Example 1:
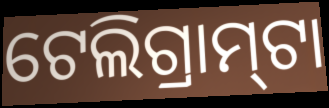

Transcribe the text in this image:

ଟେଲିଗ୍ରାମ୍‍ଟା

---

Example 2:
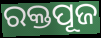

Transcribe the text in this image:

ରକ୍ତପୂଜ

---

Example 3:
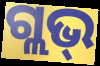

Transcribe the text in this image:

ଗ୍ଲଭ୍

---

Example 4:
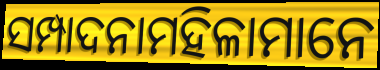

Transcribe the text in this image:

ସମ୍ପାଦନାମହିଳାମାନେ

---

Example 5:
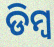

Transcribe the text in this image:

ଡିମ୍ଵ